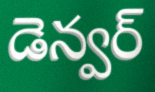
డెన్వర్